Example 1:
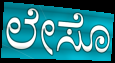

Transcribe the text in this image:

ಲೇಸೊ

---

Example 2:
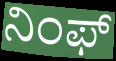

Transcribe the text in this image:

ನಿಂಫ್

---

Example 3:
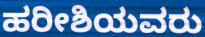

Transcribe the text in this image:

ಹರೀಶಿಯವರು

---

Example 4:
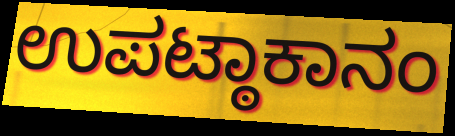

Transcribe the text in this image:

ಉಪಟ್ಠಾಕಾನಂ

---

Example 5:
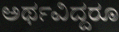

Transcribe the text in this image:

ಅರ್ಥವಿದ್ದರೂ